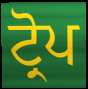
ਟ੍ਰੋਪ